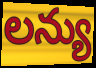
లన్యు